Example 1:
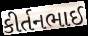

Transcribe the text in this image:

કીર્તનભાઈ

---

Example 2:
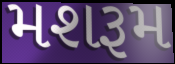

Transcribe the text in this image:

મશરૂમ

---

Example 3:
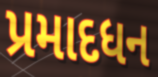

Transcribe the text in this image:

પ્રમાદધન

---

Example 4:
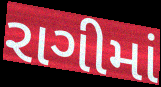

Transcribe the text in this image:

રાગીમાં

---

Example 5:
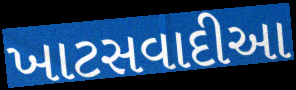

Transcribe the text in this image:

ખાટસવાદીઆ